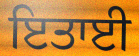
ਇਤਾਈ